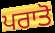
ਪਰਾਤੋ